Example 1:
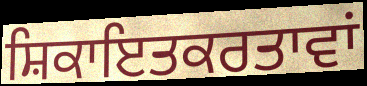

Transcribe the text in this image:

ਸ਼ਿਕਾਇਤਕਰਤਾਵਾਂ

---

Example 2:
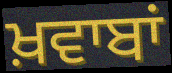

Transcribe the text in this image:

ਖ਼ਵਾਬਾਂ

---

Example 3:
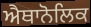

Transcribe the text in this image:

ਐਥਾਨੋਲਿਕ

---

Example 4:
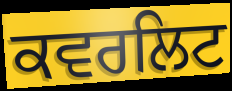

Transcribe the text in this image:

ਕਵਰਲਿਟ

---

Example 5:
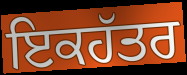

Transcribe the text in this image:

ਇਕਹੱਤਰ